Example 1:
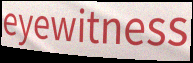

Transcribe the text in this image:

eyewitness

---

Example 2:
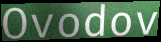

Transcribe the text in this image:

Ovodov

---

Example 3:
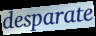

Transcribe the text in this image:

desparate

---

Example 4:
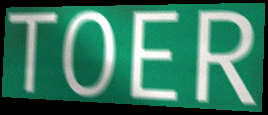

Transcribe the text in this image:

TOER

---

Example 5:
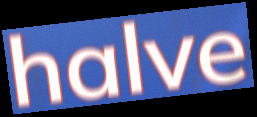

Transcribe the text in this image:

halve